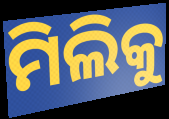
ମିଲିକୁ